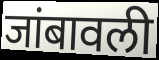
जांबावली